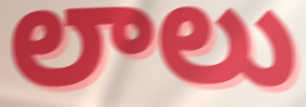
లాలు